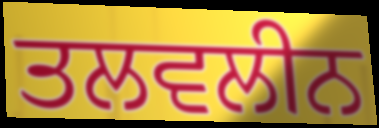
ਤਲਵਲੀਨ